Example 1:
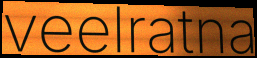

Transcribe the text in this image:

veelratna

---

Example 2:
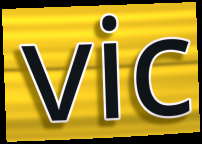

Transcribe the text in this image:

vic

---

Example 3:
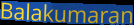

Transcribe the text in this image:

Balakumaran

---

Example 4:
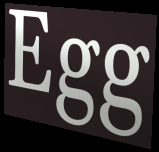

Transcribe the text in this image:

Egg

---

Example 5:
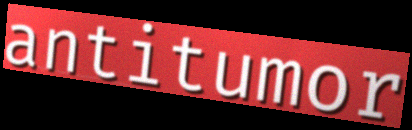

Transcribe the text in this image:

antitumor